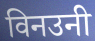
विनउनी